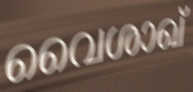
വൈശാഖ്